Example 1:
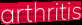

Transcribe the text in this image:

arthritis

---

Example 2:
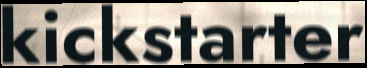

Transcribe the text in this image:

kickstarter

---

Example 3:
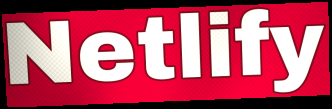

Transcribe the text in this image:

Netlify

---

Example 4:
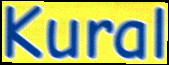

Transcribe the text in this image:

Kural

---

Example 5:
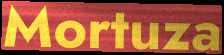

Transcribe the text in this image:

Mortuza